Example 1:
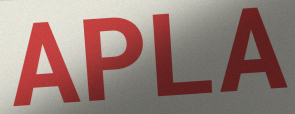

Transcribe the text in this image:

APLA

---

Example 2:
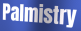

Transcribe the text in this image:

Palmistry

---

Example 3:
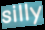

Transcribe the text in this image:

silly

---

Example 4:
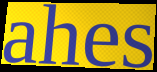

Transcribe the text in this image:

ahes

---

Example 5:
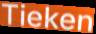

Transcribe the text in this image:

Tieken